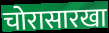
चोरासारखा